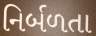
નિર્બળતા